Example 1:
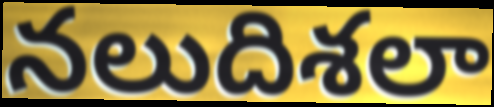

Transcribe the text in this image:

నలుదిశలా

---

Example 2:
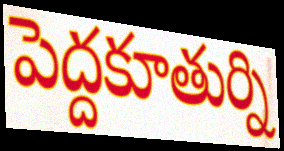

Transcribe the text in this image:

పెద్దకూతుర్ని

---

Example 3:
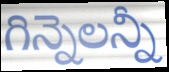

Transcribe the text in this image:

గిన్నెలన్నీ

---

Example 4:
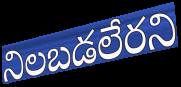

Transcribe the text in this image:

నిలబడలేరని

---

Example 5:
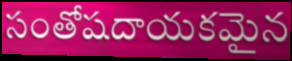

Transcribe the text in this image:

సంతోషదాయకమైన